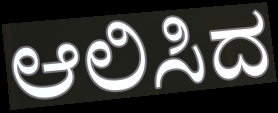
ಆಲಿಸಿದ